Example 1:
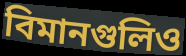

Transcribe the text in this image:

বিমানগুলিও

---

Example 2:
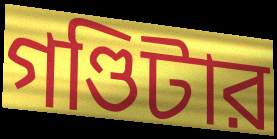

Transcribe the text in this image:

গণ্ডিটার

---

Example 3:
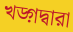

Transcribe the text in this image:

খড়্গদ্বারা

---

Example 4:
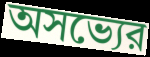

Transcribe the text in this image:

অসভ্যের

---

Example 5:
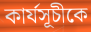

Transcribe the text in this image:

কার্যসূচীকে